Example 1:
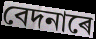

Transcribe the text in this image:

বেদনাৰে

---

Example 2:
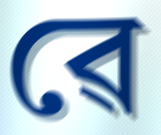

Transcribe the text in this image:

ৱে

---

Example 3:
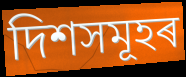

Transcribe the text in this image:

দিশসমূহৰ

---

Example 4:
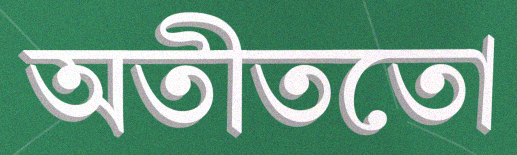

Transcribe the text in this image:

অতীততো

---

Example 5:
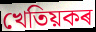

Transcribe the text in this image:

খেতিয়কৰ